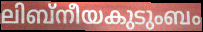
ലിബ്നീയകുടുംബം